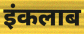
इंकलाब